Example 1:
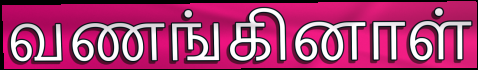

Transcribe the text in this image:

வணங்கினாள்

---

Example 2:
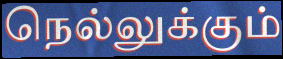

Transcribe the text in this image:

நெல்லுக்கும்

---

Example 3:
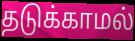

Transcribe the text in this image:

தடுக்காமல்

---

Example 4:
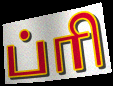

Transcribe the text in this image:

ப்ரி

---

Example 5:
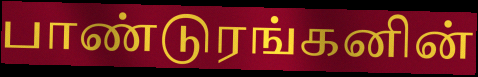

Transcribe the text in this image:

பாண்டுரங்கனின்